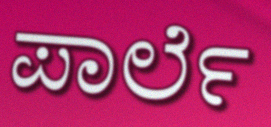
ಪಾರ್ಲೆ